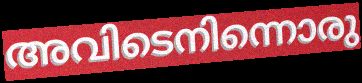
അവിടെനിന്നൊരു